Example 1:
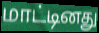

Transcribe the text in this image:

மாட்டினது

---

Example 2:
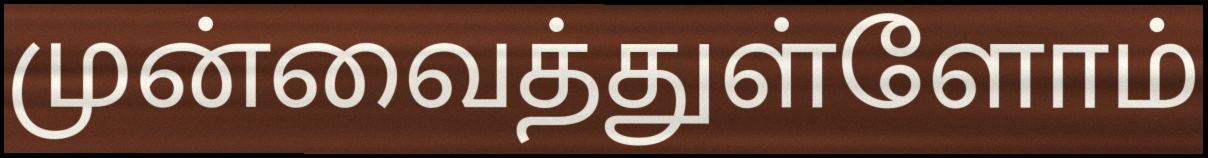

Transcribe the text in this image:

முன்வைத்துள்ளோம்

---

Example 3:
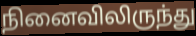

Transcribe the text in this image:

நினைவிலிருந்து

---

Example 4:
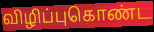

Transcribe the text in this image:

விழிப்புகொண்ட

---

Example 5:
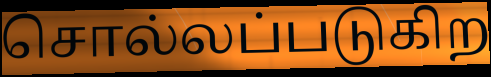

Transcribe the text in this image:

சொல்லப்படுகிற